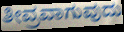
ತೀವ್ರವಾಗುವುದು